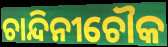
ଚାନ୍ଦିନୀଚୌକ